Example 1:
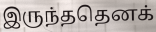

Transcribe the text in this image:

இருந்ததெனக்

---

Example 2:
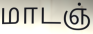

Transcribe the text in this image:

மாடஞ்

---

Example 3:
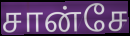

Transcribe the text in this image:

சான்சே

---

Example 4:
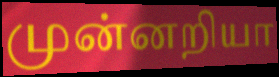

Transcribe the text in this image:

முன்னறியா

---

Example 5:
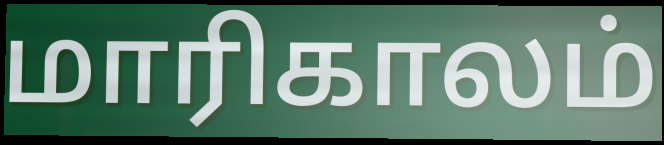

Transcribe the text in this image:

மாரிகாலம்